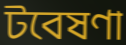
টবেষণা